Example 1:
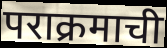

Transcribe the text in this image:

पराक्रमाची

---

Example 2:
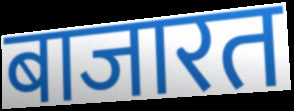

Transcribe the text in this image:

बाजारत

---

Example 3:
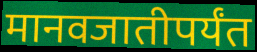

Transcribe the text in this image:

मानवजातीपर्यंत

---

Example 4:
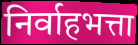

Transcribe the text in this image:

निर्वाहभत्ता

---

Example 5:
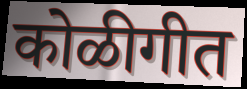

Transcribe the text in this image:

कोळीगीत